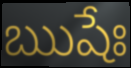
ఋషేః